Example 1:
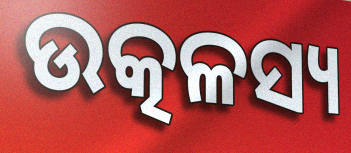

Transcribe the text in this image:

ଉତ୍କଳସ୍ୟ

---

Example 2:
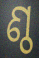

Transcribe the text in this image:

ଣ୍ଠ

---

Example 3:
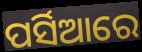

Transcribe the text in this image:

ପର୍ସିଆରେ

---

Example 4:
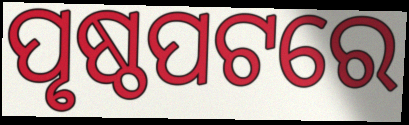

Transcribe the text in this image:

ପୃଷ୍ଠପଟରେ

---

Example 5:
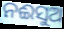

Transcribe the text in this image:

ନଈସୁଅ